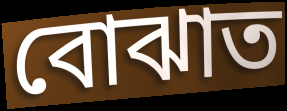
বোঝাত